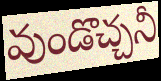
వుండొచ్చనీ